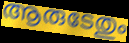
ആരുടേതും